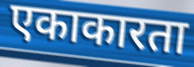
एकाकारता